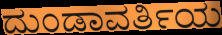
ದುಂಡಾವರ್ತಿಯ